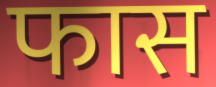
फास